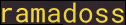
ramadoss